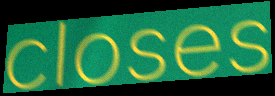
closes